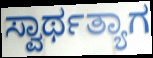
ಸ್ವಾರ್ಥತ್ಯಾಗ